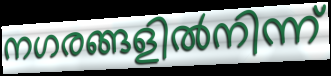
നഗരങ്ങളിൽനിന്ന്